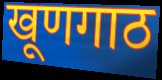
खूणगाठ